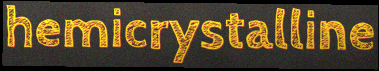
hemicrystalline